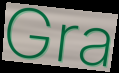
Gra